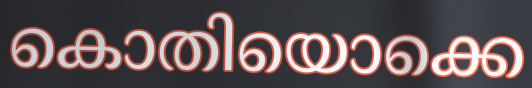
കൊതിയൊക്കെ